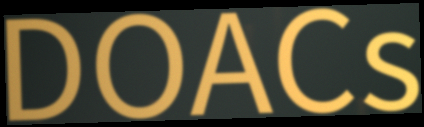
DOACs